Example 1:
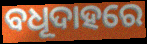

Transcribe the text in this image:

ବଧୂଦାହରେ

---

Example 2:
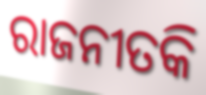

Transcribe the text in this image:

ରାଜନୀତକି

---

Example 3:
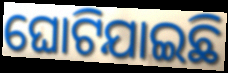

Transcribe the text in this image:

ଘୋଟିଯାଇଛି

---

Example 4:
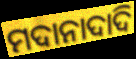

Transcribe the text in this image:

ମଦାନାଦାଦି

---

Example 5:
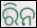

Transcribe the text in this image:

ରିନ